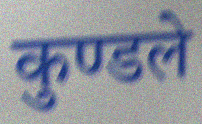
कुण्डले